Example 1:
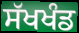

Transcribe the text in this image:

ਸੱਖਖੰਡ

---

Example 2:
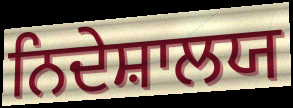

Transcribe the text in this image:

ਨਿਦੇਸ਼ਾਲਯ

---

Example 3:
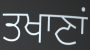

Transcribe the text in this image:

ਤਖਾਣਾਂ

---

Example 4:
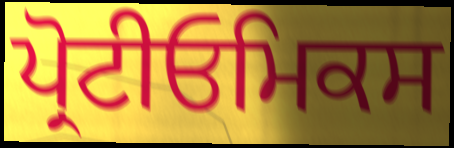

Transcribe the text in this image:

ਪ੍ਰੋਟੀਓਮਿਕਸ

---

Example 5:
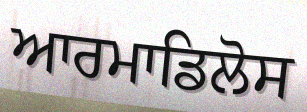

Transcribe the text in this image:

ਆਰਮਾਡਿਲੋਸ